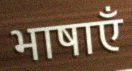
भाषाएँ